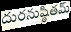
దురనుష్ఠితమ్